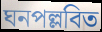
ঘনপল্লবিত